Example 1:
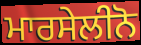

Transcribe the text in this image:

ਮਾਰਸੇਲੀਨੋ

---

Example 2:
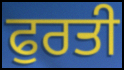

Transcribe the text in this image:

ਫੁਰਤੀ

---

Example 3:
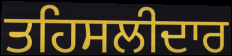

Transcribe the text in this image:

ਤਹਿਸਲੀਦਾਰ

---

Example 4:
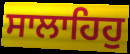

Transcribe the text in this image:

ਸਾਲਾਹਿਹੁ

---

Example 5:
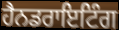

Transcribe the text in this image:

ਹੈਨਡਰਾਇਟਿੰਗ